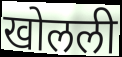
खोलली